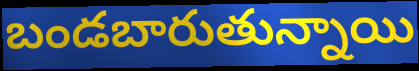
బండబారుతున్నాయి